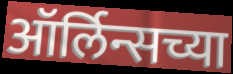
ऑर्लिन्सच्या